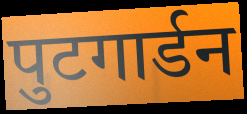
पुटगार्डन